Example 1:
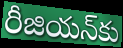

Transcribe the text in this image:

రీజియన్‌కు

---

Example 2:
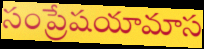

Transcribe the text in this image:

సంప్రేషయామాస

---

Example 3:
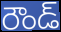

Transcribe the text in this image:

రౌండ్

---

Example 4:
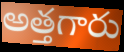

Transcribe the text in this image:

అత్తగారు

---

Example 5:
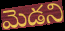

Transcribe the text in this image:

మెడని